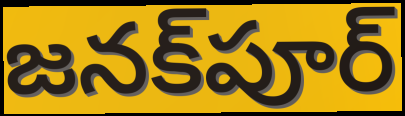
జనక్‌పూర్